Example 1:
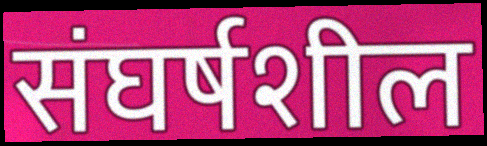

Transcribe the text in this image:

संघर्षशील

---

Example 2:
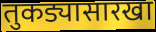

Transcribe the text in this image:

तुकड्यासारखा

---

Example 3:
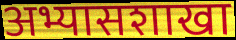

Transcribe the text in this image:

अभ्यासशाखा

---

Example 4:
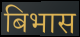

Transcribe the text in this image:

बिभास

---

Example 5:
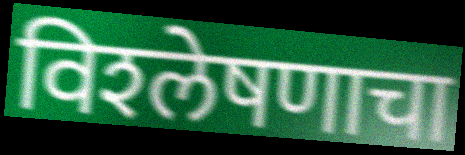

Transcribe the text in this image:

विश्‍लेषणाचा